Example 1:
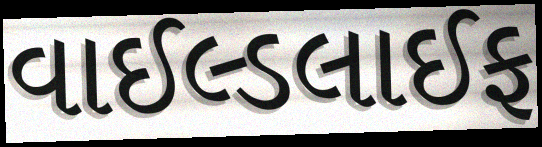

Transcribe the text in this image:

વાઈલ્ડલાઈફ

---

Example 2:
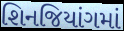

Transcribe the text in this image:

શિનજિયાંગમાં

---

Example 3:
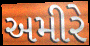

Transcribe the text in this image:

અમીરે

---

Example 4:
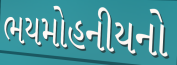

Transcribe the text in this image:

ભયમોહનીયનો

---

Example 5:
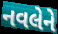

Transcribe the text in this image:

નવલેને